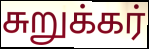
சுறுக்கர்